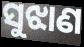
ସୁଝାଣ